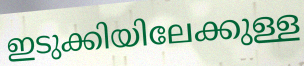
ഇടുക്കിയിലേക്കുള്ള